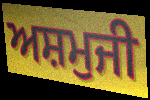
ਅਸ਼ਮੁਜੀ